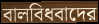
বালবিধবাদের